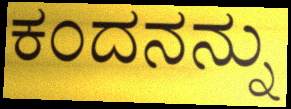
ಕಂದನನ್ನು